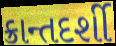
ક્રાન્તદર્શી